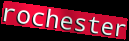
rochester